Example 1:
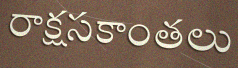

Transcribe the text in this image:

రాక్షసకాంతలు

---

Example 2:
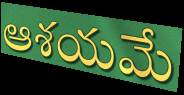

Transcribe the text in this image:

ఆశయమే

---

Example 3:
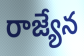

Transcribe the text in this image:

రాజ్యేన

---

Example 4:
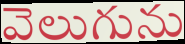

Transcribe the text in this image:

వెలుగును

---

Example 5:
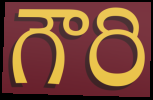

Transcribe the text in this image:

గౌరి